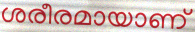
ശരീരമായാണ്